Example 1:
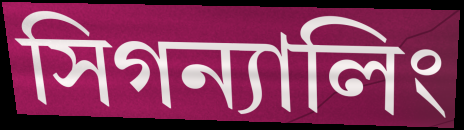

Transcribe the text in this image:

সিগন্যালিং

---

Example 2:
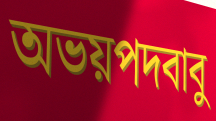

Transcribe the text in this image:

অভয়পদবাবু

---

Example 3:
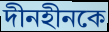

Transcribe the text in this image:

দীনহীনকে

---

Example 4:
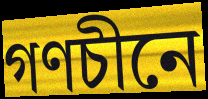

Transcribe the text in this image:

গণচীনে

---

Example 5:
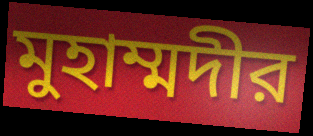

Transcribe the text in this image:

মুহাম্মদীর